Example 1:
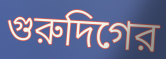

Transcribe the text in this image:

গুরুদিগের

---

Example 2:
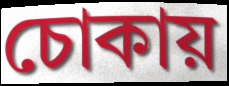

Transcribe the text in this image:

চোকায়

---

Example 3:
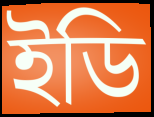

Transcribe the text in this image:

ইডি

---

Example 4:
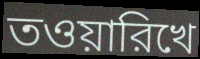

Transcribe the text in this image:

তওয়ারিখে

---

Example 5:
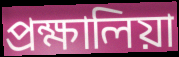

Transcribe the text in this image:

প্রক্ষালিয়া